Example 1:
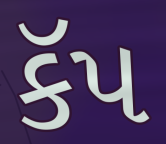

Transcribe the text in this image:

કૅપ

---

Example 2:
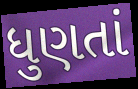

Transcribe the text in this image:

ધુણતાં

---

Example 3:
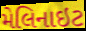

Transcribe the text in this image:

મેલિનાઇટ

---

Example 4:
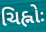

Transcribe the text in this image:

ચિહ્નોઃ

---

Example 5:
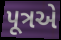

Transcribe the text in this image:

પૂત્રએ